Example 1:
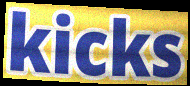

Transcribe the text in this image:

kicks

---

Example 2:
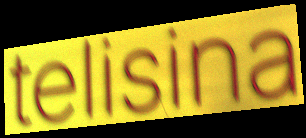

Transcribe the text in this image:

telisina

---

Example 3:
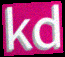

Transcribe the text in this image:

kd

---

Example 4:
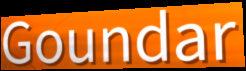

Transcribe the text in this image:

Goundar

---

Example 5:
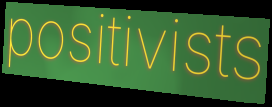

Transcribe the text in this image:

positivists